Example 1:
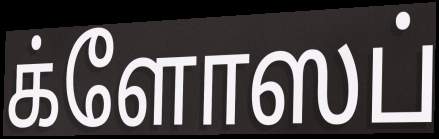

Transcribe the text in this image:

க்ளோஸப்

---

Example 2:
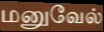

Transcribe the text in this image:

மனுவேல்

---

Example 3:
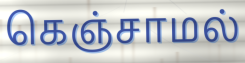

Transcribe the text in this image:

கெஞ்சாமல்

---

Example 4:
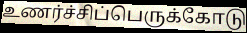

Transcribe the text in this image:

உணர்ச்சிப்பெருக்கோடு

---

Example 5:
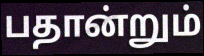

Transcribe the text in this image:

பதான்றும்